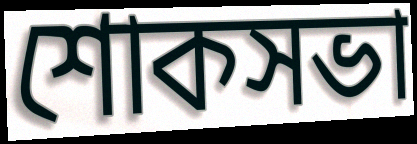
শোকসভা